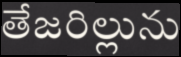
తేజరిల్లును